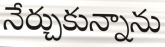
నేర్చుకున్నాను